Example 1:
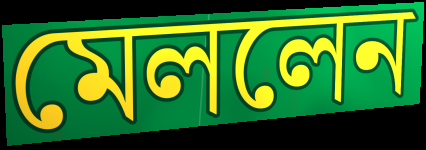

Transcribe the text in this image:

মেললেন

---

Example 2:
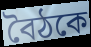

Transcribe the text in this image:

বৈঠকে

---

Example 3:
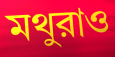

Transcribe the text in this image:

মথুরাও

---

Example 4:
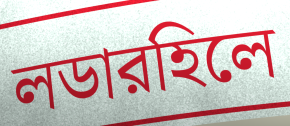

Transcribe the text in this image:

লডারহিলে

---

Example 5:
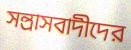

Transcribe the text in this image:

সন্ত্রাসবাদীদের